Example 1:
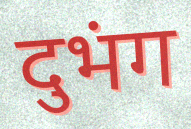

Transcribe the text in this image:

दुभंग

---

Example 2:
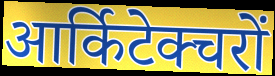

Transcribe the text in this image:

आर्किटेक्चरों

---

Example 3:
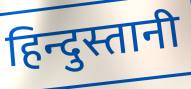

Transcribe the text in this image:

हिन्दुस्तानी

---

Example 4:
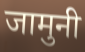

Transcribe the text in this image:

जामुनी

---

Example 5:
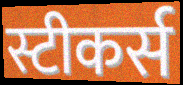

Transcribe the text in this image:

स्टीकर्स